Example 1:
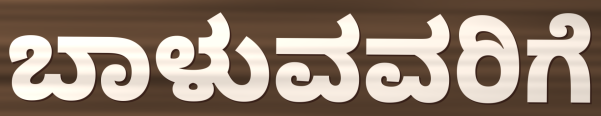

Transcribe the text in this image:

ಬಾಳುವವರಿಗೆ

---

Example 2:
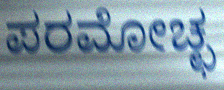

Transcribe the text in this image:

ಪರಮೋಚ್ಛ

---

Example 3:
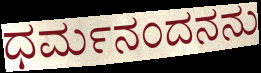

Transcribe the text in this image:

ಧರ್ಮನಂದನನು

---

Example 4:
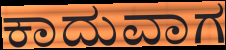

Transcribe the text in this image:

ಕಾದುವಾಗ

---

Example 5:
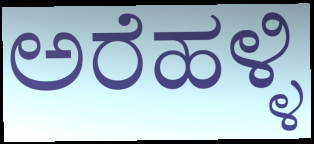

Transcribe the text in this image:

ಅರೆಹಳ್ಳಿ